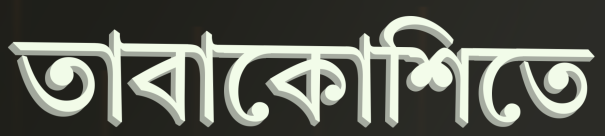
তাবাকোশিতে